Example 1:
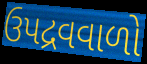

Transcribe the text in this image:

ઉપદ્રવવાળો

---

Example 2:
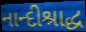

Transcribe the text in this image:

નાન્દીશ્રાદ્ધ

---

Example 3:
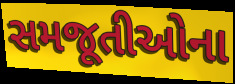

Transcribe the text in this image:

સમજૂતીઓના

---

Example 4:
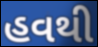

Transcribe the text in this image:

હવથી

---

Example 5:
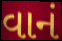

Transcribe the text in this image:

વાનં